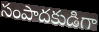
సంపాదకుడిగా